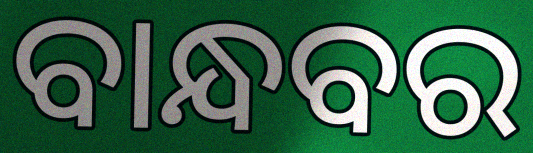
ବାନ୍ଧବର